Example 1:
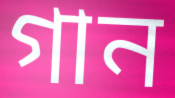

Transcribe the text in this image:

গান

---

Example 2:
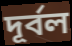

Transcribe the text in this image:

দূর্বল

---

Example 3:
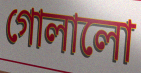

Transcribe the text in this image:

গোলালো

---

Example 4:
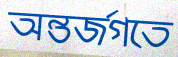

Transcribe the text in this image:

অন্তর্জগতে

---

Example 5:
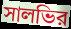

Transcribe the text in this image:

সালভির